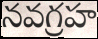
నవగ్రహ